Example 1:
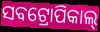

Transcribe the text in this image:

ସବଟ୍ରୋପିକାଲ୍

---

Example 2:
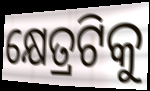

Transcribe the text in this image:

କ୍ଷେତ୍ରଟିକୁ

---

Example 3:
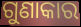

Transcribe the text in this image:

ଗୁଣାକାର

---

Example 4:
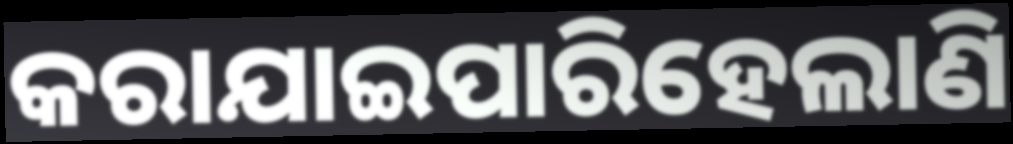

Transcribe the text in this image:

କରାଯାଇପାରିହେଲାଣି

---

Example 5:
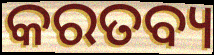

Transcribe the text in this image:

କରତବ୍ୟ